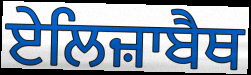
ਏਲਿਜ਼ਾਬੈਥ